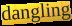
dangling